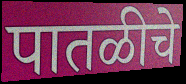
पातळीचे